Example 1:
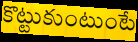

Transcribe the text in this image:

కొట్టుకుంటుంటే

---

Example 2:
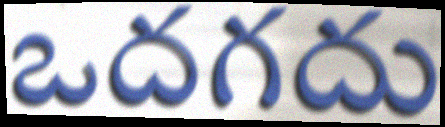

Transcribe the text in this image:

ఒదగదు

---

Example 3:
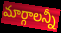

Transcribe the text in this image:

మార్గాలన్నీ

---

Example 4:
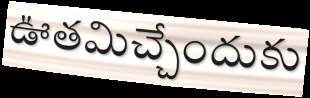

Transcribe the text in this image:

ఊతమిచ్చేందుకు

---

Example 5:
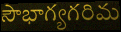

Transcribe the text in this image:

సౌభాగ్యగరిమ